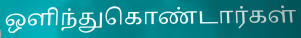
ஒளிந்துகொண்டார்கள்